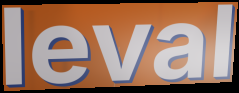
leval